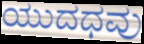
ಯುದಧವು